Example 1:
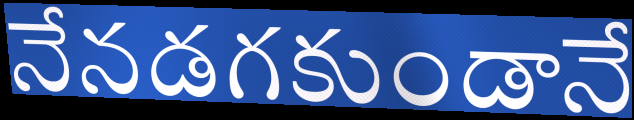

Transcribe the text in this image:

నేనడగకుండానే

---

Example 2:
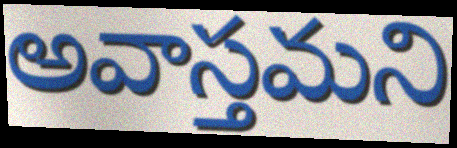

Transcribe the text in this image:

అవాస్తమని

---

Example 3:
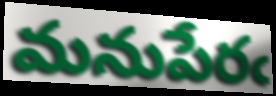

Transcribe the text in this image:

మనుపేరఁ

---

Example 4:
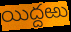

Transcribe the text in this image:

యిద్దఱు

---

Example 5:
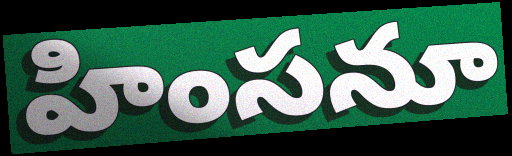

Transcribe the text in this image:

హింసనూ